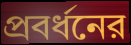
প্রবর্ধনের